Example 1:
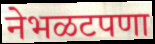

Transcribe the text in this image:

नेभळटपणा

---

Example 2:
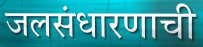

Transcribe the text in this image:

जलसंधारणाची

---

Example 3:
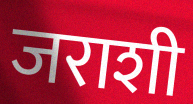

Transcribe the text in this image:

जराशी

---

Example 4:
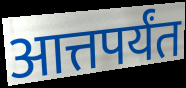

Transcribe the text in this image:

आत्तपर्यंत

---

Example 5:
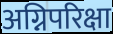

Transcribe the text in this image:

अग्निपरिक्षा